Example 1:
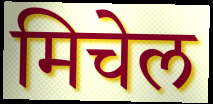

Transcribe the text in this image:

मिचेल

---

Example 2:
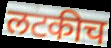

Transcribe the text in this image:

लटकीच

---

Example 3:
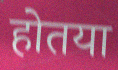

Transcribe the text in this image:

होतया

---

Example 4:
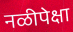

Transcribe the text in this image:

नळीपेक्षा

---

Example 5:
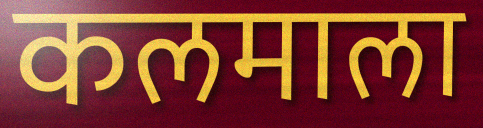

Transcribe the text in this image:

कलमाला